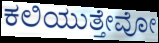
ಕಲಿಯುತ್ತೇವೋ